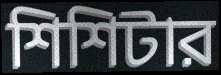
শিশিটার